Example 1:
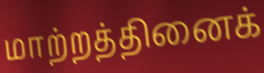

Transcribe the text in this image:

மாற்றத்தினைக்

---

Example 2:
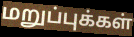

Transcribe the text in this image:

மறுப்புக்கள்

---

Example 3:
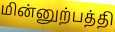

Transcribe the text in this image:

மின்னுற்பத்தி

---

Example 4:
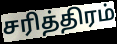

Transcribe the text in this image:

சரித்திரம்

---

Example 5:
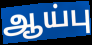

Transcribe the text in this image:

ஆய்பு